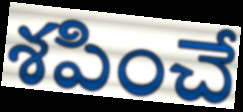
శపించే